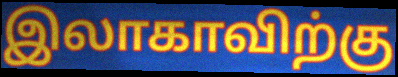
இலாகாவிற்கு